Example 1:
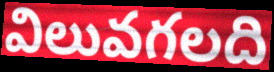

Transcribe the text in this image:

విలువగలది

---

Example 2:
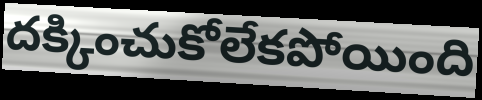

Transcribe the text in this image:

దక్కించుకోలేకపోయింది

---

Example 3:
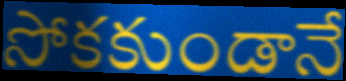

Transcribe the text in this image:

సోకకుండానే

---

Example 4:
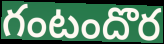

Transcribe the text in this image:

గంటందొర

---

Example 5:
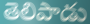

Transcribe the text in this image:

తెలిపాడు